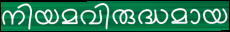
നിയമവിരുദ്ധമായ